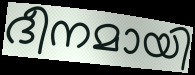
ദീനമായി